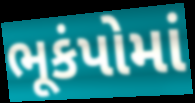
ભૂકંપોમાં